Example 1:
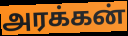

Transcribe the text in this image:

அரக்கன்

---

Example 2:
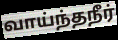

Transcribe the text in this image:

வாய்ந்தநீர்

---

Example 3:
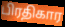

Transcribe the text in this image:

பிரதிகார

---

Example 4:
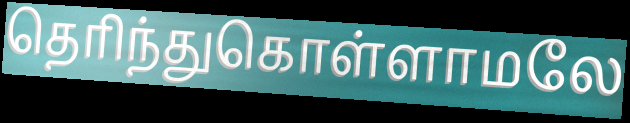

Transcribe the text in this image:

தெரிந்துகொள்ளாமலே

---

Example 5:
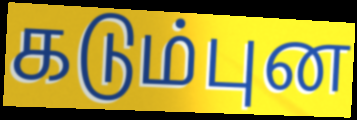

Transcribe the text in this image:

கடும்புன